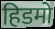
हिडमो